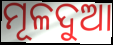
ମୂଳଦୁଆ